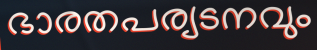
ഭാരതപര്യടനവും